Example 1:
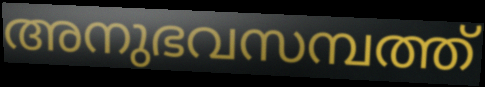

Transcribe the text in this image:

അനുഭവസമ്പത്ത്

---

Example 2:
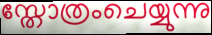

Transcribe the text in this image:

സ്തോത്രംചെയ്യുന്നു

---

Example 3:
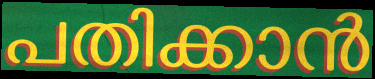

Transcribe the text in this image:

പതിക്കാൻ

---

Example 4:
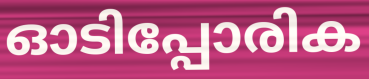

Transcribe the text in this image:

ഓടിപ്പോരിക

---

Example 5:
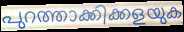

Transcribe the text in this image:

പുറത്താക്കിക്കളയുക